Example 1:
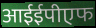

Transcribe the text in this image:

आईईपीएफ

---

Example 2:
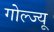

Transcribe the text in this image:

गोल्ज्यू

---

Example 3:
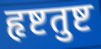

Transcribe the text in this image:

हृष्टतुष्ट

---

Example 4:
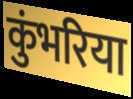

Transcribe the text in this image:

कुंभरिया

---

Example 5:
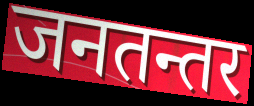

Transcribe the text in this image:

जनतन्तर